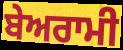
ਬੇਅਰਾਮੀ